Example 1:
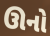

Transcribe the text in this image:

ઊનો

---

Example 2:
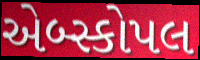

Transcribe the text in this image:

એબ્સ્કોપલ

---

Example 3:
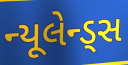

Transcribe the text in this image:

ન્યૂલેન્ડ્સ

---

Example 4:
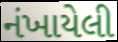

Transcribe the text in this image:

નંખાયેલી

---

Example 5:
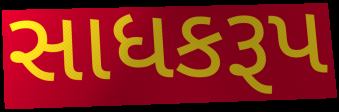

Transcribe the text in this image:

સાધકરૂપ